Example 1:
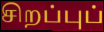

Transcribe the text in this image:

சிறப்புப்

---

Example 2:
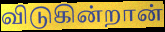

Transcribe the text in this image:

விடுகின்றான்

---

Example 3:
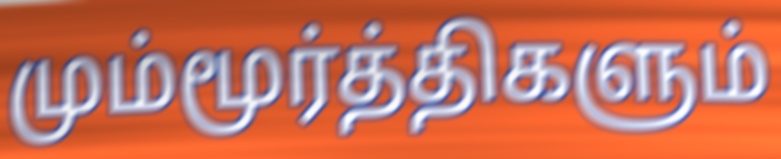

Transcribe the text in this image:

மும்மூர்த்திகளும்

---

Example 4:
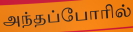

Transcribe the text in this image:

அந்தப்போரில்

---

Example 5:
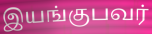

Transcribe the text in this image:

இயங்குபவர்